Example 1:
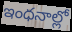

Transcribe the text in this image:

ఇంధనాల్లో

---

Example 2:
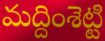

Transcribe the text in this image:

మద్దింశెట్టి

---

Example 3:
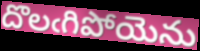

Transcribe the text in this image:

దొలఁగిపోయెను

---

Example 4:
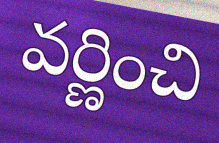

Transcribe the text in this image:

వర్ణించి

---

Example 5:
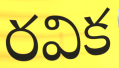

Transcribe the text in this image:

రవిక